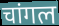
चांगल